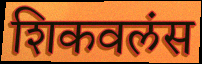
शिकवलंस